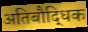
अतिबौद्धिक